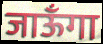
जाऊँगा